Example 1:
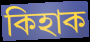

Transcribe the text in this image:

কিহাক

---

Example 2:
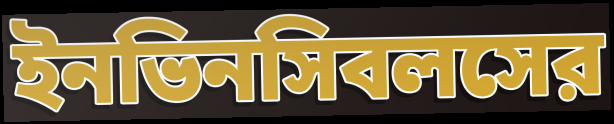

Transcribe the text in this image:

ইনভিনসিবলসের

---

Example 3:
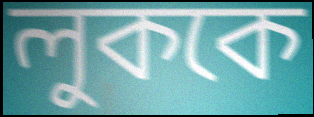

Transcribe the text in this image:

লুককে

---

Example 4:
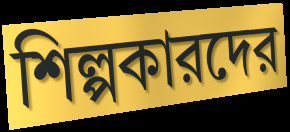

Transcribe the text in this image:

শিল্পকারদের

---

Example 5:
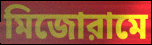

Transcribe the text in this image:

মিজোরামে